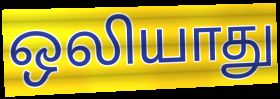
ஒலியாது